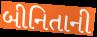
બીનિતાની